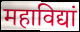
महाविद्यां